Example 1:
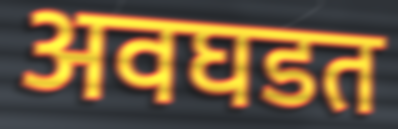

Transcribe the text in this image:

अवघडत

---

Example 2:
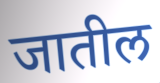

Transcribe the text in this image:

जातील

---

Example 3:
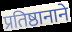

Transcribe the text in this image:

प्रतिष्ठानाने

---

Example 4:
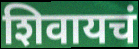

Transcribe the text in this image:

शिवायचं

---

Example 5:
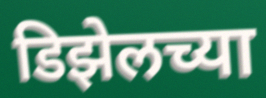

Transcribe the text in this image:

डिझेलच्या